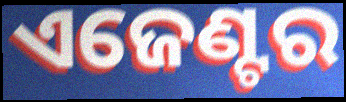
ଏଜେଣ୍ଟର